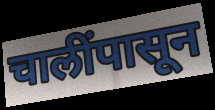
चालींपासून